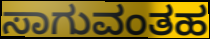
ಸಾಗುವಂತಹ